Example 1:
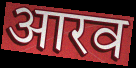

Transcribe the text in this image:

आरव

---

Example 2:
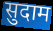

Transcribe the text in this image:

सुदाम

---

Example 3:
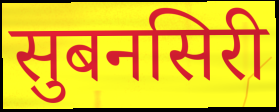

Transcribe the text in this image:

सुबनसिरी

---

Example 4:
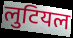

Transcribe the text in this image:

लुटियल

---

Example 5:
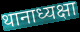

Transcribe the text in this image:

थानाध्यक्षा